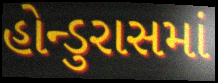
હોન્ડુરાસમાં